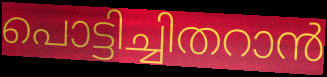
പൊട്ടിച്ചിതറാൻ